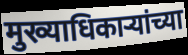
मुख्याधिकाऱ्यांच्या